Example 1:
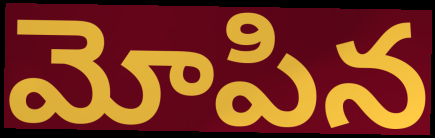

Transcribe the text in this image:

మోపిన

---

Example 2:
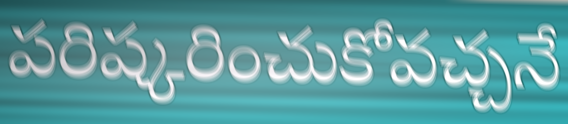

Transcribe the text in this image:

పరిష్కరించుకోవచ్చనే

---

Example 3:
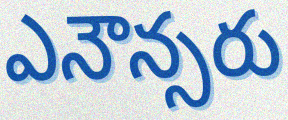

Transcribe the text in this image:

ఎనౌన్సరు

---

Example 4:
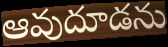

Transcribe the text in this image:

ఆవుదూడను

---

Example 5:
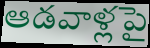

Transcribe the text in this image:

ఆడవాళ్లపై